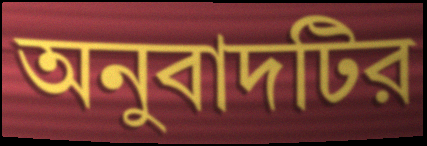
অনুবাদটির